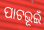
ପାଟଭୂଇଁ